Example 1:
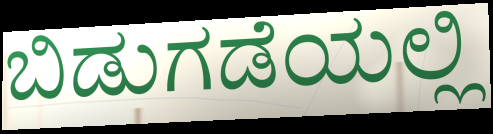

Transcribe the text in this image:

ಬಿಡುಗಡೆಯಲ್ಲಿ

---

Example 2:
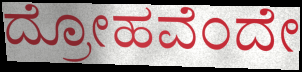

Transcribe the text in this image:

ದ್ರೋಹವೆಂದೇ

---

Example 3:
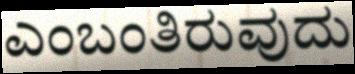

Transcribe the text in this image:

ಎಂಬಂತಿರುವುದು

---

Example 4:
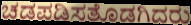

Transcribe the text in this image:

ಚಡಪಡಿಸತೊಡಗಿದರು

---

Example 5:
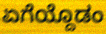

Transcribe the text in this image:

ಏಗೆಯ್ದೊಡಂ